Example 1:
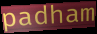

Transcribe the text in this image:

padham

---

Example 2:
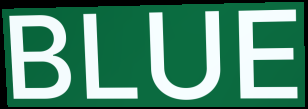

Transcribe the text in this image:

BLUE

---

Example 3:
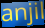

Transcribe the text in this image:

anjil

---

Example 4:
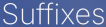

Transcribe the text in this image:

Suffixes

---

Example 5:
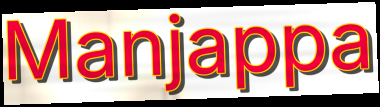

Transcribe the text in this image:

Manjappa